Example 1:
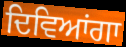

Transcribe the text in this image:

ਦਿਵਿਆਂਗਾ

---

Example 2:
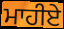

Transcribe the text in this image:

ਮਾਹੀਏ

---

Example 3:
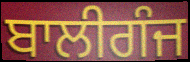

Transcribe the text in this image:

ਬਾਲੀਗੰਜ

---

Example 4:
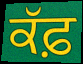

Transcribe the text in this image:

ਕੱਫ਼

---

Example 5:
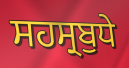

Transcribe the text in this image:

ਸਹਸ੍ਰਬੁਧੇ